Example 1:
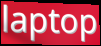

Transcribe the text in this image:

laptop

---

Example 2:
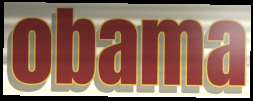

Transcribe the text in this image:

obama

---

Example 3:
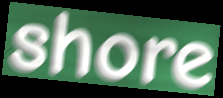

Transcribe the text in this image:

shore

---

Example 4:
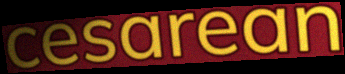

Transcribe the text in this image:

cesarean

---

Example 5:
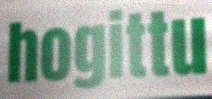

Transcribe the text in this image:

hogittu